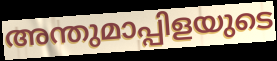
അന്തുമാപ്പിളയുടെ